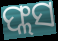
ଫ୍ଲସ